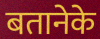
बतानेके